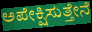
ಅಪೇಕ್ಷಿಸುತ್ತೇನೆ